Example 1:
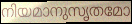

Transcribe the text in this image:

നിയമാനുസൃതമോ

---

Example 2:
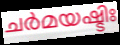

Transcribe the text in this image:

ചർമയഷ്ടിഃ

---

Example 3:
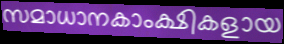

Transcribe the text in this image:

സമാധാനകാംക്ഷികളായ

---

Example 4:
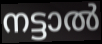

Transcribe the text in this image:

നട്ടാൽ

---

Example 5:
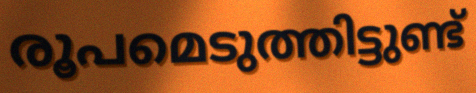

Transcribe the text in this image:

രൂപമെടുത്തിട്ടുണ്ട്